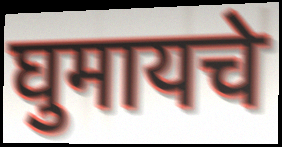
घुमायचे